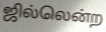
ஜில்லென்ற